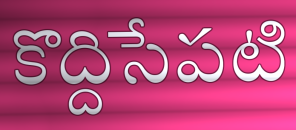
కొద్దిసేపటి